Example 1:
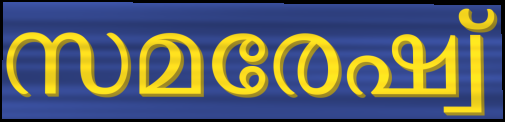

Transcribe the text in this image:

സമരേഷ്വ്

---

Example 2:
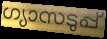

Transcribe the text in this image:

ഗ്യാസടുപ്പ്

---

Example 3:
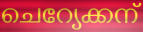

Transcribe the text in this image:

ചെറ്യേക്കന്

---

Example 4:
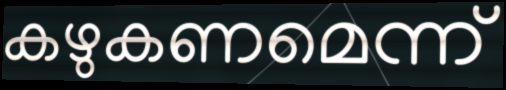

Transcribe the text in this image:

കഴുകണമെന്ന്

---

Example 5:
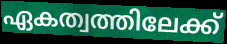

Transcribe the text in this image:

ഏകത്വത്തിലേക്ക്